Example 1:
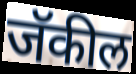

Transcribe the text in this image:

जॅकील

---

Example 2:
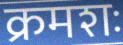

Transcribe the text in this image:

क्रमशः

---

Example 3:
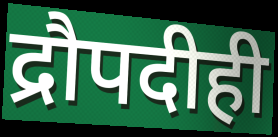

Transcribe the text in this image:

द्रौपदीही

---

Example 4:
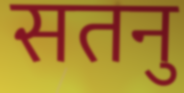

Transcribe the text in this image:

सतनु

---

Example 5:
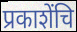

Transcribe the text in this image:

प्रकाशेंचि